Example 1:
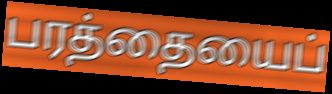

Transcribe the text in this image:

பரத்தையைப்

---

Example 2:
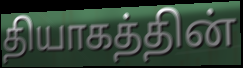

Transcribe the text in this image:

தியாகத்தின்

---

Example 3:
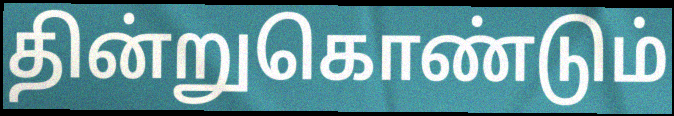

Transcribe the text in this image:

தின்றுகொண்டும்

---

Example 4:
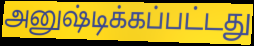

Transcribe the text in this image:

அனுஷ்டிக்கப்பட்டது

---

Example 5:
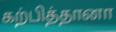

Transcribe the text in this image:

கற்பித்தானா